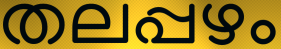
തലപ്പഴം